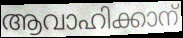
ആവാഹിക്കാന്